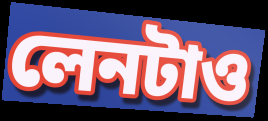
লেনটাও